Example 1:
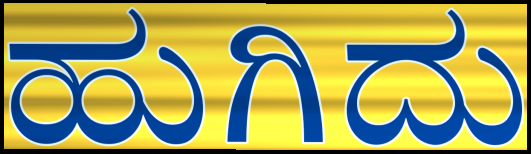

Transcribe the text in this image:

ಹುಗಿದು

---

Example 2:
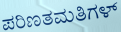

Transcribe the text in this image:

ಪರಿಣತಮತಿಗಳ್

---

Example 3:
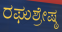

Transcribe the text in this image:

ರಘುಶ್ರೇಷ್ಠ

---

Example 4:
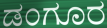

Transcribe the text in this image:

ಡಂಗೂರ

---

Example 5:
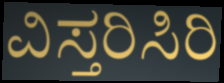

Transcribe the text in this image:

ವಿಸ್ತರಿಸಿರಿ